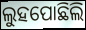
ଲୁହପୋଛିଲି